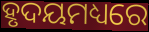
ହୃଦୟମଧ୍ୟରେ